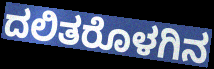
ದಲಿತರೊಳಗಿನ